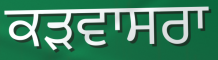
ਕੜਵਾਸਰਾ